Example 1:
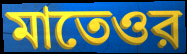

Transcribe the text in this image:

মাতেওর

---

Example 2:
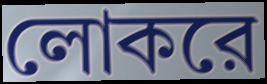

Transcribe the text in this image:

লোকরে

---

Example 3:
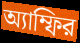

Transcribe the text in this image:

অ্যাম্ফির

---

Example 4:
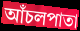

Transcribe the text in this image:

আঁচলপাতা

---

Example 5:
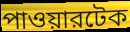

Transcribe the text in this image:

পাওয়ারটেক